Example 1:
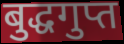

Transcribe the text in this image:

बुद्धगुप्त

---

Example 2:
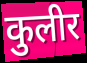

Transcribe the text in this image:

कुलीर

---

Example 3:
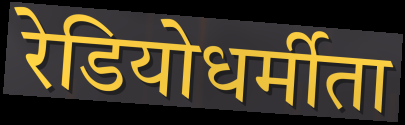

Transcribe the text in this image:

रेडियोधर्मीता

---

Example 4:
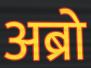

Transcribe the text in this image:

अब्रो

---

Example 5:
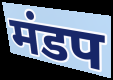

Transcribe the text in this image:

मंडप